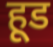
हूड